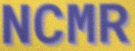
NCMR